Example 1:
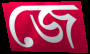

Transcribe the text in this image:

জে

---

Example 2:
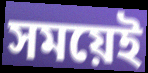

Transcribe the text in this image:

সময়েই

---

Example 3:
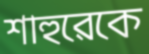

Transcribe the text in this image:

শাহুৱেকে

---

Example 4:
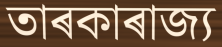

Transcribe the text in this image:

তাৰকাৰাজ্য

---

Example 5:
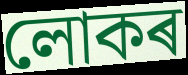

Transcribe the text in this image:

লোকৰ